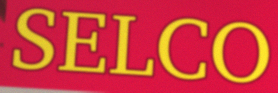
SELCO